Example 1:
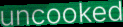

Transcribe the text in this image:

uncooked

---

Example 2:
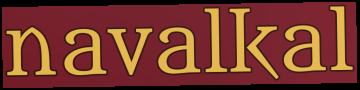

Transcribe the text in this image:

navalkal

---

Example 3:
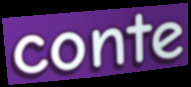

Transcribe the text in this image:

conte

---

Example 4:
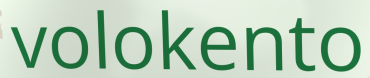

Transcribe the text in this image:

volokento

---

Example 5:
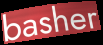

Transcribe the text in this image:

basher